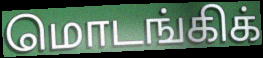
மொடங்கிக்